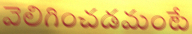
వెలిగించడమంటే